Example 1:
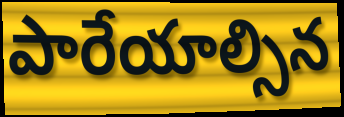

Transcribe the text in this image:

పారేయాల్సిన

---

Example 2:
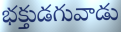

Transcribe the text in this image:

భక్తుడగువాడు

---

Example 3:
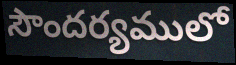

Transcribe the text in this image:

సౌందర్యములో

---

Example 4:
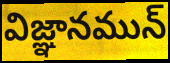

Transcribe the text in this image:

విజ్ఞానమున్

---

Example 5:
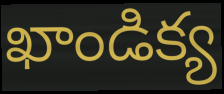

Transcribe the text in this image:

ఖాండిక్య